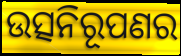
ଉତ୍ସନିରୂପଣର